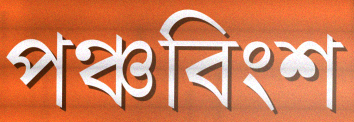
পঞ্চবিংশ